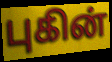
புகின்